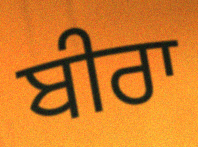
ਬੀਰਾ